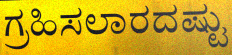
ಗ್ರಹಿಸಲಾರದಷ್ಟು